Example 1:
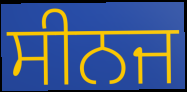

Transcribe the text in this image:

ਸੀਨਜ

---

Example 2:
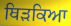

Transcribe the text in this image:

ਥਿੜਕਿਆ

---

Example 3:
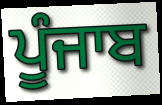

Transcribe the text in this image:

ਪੂੰਜਾਬ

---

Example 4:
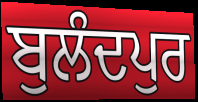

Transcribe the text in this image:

ਬੁਲੰਦਪੁਰ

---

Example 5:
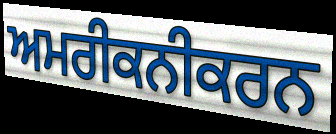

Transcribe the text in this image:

ਅਮਰੀਕਨੀਕਰਨ